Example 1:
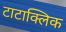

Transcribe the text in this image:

टाटाक्लिक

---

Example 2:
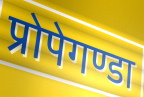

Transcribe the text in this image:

प्रोपेगण्डा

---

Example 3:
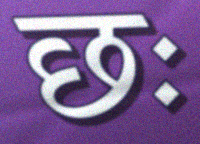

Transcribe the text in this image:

छः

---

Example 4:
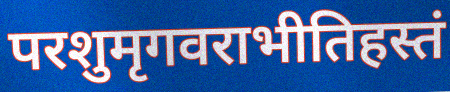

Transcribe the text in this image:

परशुमृगवराभीतिहस्तं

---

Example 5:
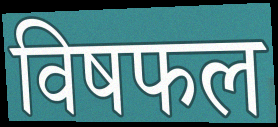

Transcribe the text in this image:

विषफल